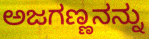
ಅಜಗಣ್ಣನನ್ನು